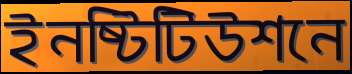
ইনষ্টিটিউশনে